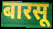
बारसू